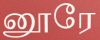
னூரே